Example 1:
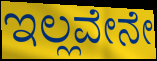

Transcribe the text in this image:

ಇಲ್ಲವೇನೇ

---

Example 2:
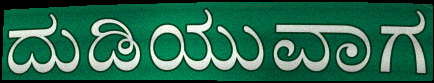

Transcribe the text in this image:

ದುಡಿಯುವಾಗ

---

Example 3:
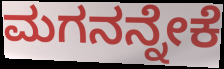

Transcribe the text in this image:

ಮಗನನ್ನೇಕೆ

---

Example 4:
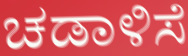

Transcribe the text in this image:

ಚಡಾಳಿಸೆ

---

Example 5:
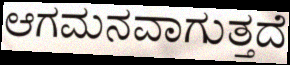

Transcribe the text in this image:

ಆಗಮನವಾಗುತ್ತದೆ